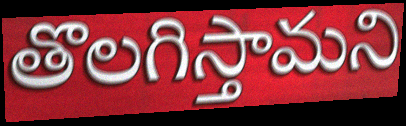
తొలగిస్తామని